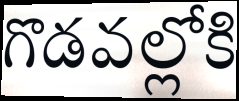
గొడవల్లోకి